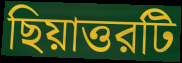
ছিয়াত্তরটি